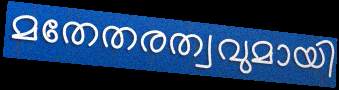
മതേതരത്വവുമായി